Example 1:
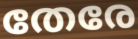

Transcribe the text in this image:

തേരേ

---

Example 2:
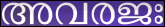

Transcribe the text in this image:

അവരജഃ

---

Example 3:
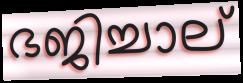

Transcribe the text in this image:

ഭജിച്ചാല്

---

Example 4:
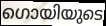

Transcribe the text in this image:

ഗൊയിയുടെ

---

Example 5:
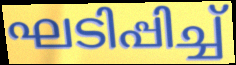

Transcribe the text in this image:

ഘടിപ്പിച്ച്